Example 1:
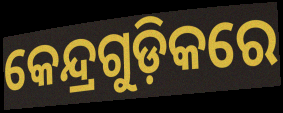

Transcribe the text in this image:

କେନ୍ଦ୍ରଗୁଡ଼ିକରେ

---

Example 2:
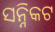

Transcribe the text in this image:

ସନ୍ନିକଟ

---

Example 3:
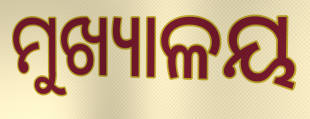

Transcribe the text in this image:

ମୁଖ୍ୟାଳୟ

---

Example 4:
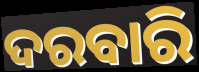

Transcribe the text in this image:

ଦରବାରି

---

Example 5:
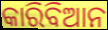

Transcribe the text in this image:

କାରିବିଆନ